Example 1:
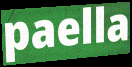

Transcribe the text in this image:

paella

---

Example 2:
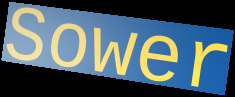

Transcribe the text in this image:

Sower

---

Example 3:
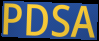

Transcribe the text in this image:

PDSA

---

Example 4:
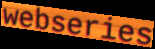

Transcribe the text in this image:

webseries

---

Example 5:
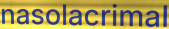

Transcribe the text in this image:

nasolacrimal